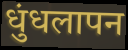
धुंधलापन